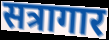
सत्रागार